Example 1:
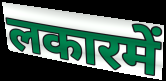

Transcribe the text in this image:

लकारमें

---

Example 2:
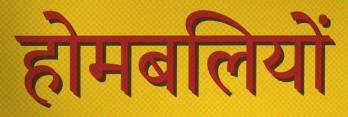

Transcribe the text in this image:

होमबलियों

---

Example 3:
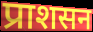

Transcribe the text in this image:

प्राशसन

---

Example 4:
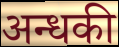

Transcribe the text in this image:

अन्धकी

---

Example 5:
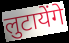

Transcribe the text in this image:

लुटायेंगे